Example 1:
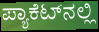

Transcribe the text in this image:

ಪ್ಯಾಕೆಟ್‍ನಲ್ಲಿ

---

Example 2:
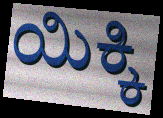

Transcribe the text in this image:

ಯಿಕ್ಕಿ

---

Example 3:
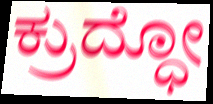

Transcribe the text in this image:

ಕ್ರುದ್ಧೋ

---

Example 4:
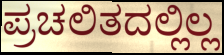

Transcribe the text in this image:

ಪ್ರಚಲಿತದಲ್ಲಿಲ್ಲ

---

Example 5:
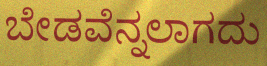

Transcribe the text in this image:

ಬೇಡವೆನ್ನಲಾಗದು